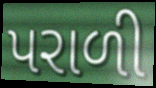
પરાળી